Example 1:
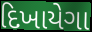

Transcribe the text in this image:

દિખાયેગા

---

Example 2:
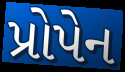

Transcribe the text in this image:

પ્રોપેન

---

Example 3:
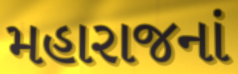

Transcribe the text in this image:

મહારાજનાં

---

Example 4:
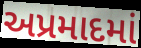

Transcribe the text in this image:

અપ્રમાદમાં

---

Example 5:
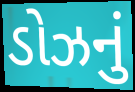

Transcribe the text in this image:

ડોઝનું